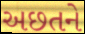
અછતને